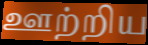
ஊற்றிய